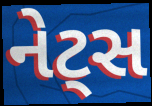
નેટ્સ